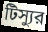
টিস্যুর